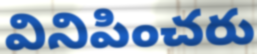
వినిపించరు